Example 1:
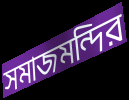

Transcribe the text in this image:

সমাজমন্দির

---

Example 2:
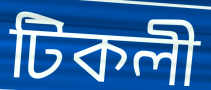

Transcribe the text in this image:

টিকলী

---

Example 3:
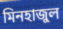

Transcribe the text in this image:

মিনহাজুল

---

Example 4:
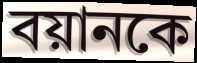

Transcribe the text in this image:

বয়ানকে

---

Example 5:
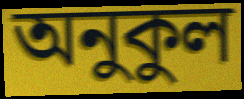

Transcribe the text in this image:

অনুকুল